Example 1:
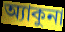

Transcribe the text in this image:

অ্যাকুনা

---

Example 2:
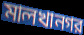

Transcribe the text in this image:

মালখানগর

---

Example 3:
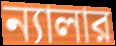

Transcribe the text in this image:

ন্যালার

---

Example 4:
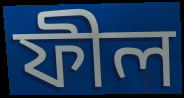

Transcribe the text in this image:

ফীল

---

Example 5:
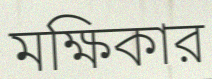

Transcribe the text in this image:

মক্ষিকার